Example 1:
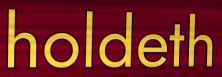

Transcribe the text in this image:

holdeth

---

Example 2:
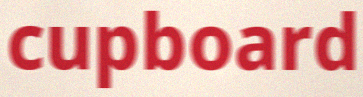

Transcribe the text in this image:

cupboard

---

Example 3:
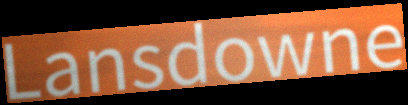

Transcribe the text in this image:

Lansdowne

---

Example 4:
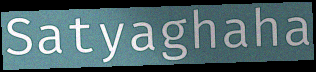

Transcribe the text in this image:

Satyaghaha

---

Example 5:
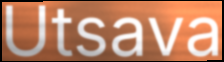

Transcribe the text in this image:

Utsava